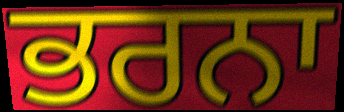
ਭਰਨਾ